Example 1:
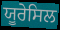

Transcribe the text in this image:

ਯੂਰੇਸਿਲ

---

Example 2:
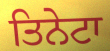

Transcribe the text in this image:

ਤਿਨੇਟਾ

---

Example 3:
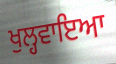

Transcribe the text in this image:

ਖੁਲ੍ਹਵਾਇਆ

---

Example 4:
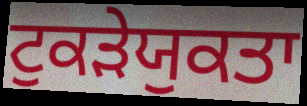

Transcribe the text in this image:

ਟੁਕੜੇਯੁਕਤਾ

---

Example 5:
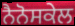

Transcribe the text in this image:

ਨੈਨੋਸਕੇਲ